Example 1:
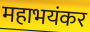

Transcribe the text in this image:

महाभयंकर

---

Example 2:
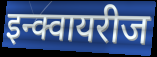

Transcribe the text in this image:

इन्क्वायरीज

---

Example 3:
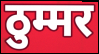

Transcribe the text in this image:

ठुम्मर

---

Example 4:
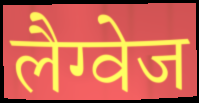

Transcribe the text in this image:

लैग्वेज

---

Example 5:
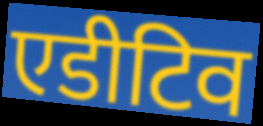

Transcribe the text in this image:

एडीटिव